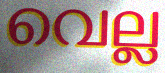
വെല്ല